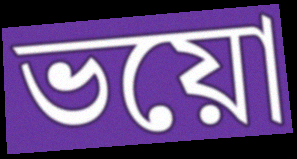
ভয়ো